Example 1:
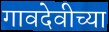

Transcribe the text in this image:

गावदेवीच्या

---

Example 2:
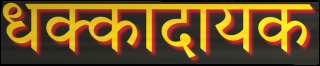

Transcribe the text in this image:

धक्कादायक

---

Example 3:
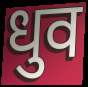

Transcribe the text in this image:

धुव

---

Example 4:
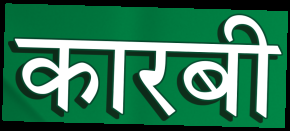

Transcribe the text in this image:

कारबी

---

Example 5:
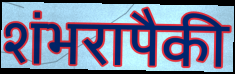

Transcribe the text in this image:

शंभरापैकी